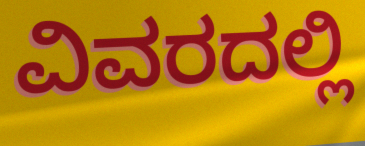
ವಿವರದಲ್ಲಿ